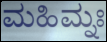
ಮಹಿಮ್ನಃ